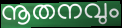
നൂതനവും